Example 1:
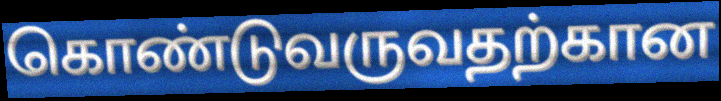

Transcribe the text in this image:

கொண்டுவருவதற்கான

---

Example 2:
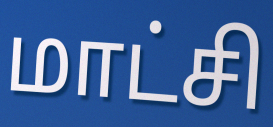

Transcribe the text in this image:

மாட்சி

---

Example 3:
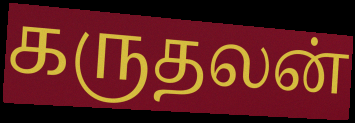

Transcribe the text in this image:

கருதலன்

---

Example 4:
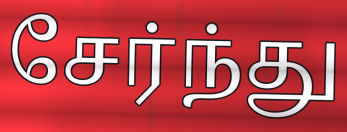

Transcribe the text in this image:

சேர்ந்து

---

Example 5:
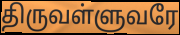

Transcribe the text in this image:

திருவள்ளுவரே